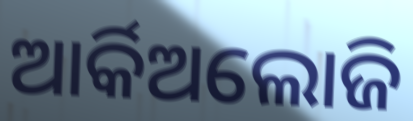
ଆର୍କିଅଲୋଜି